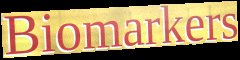
Biomarkers